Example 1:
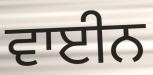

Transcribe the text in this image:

ਵਾਈਨ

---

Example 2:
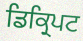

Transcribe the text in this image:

ਡਿਕ੍ਰਿਪਟ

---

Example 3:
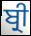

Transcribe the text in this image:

ਬ੍ਰੀ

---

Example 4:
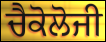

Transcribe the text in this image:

ਚੈਕੋਲੋਜੀ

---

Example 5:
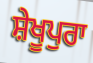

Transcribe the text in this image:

ਸ਼ੇਖੂਪੁਰਾ